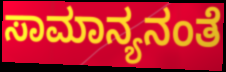
ಸಾಮಾನ್ಯನಂತೆ